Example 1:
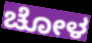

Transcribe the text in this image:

ಚೋಳ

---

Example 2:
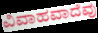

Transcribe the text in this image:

ವಿವಾಹವಾದೆವು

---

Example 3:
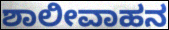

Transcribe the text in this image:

ಶಾಲೀವಾಹನ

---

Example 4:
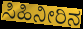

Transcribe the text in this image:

ಸಿಹಿನೀರಿನ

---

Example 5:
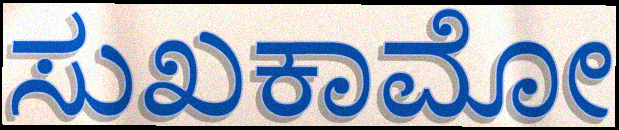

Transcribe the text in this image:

ಸುಖಕಾಮೋ